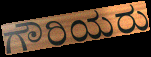
ಗೌರಿಯರು